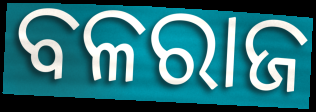
ବଳରାଜ